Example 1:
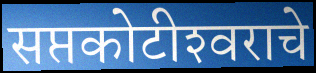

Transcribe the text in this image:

सप्तकोटीश्वराचे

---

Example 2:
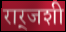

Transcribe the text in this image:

रार्जशी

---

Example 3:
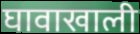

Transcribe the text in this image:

घावाखाली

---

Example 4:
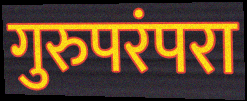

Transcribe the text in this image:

गुरुपरंपरा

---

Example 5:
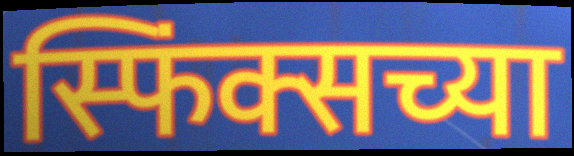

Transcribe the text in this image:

स्फिंक्सच्या